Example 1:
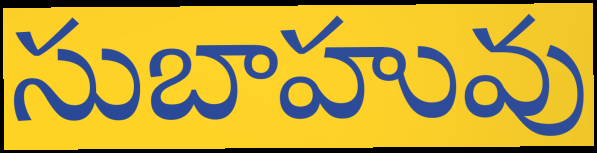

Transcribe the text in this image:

సుబాహువు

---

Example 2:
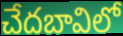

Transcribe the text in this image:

చేదబావిలో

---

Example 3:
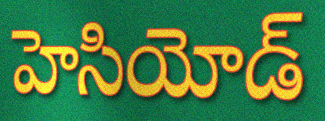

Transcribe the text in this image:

హెసియోడ్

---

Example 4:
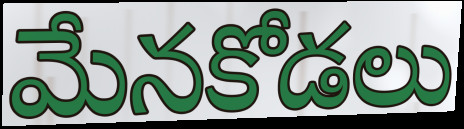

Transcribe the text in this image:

మేనకోడలు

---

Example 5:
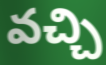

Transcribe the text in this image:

వచ్చి